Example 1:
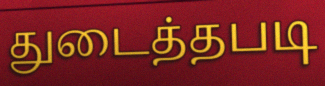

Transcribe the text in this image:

துடைத்தபடி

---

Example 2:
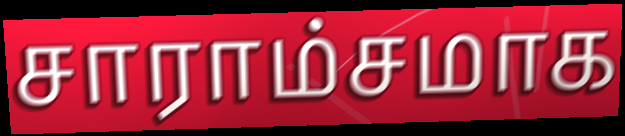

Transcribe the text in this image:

சாராம்சமாக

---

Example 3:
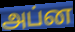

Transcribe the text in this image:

அப்ன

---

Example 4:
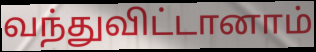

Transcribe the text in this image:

வந்துவிட்டானாம்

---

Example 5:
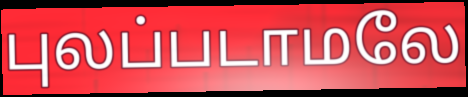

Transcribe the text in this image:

புலப்படாமலே